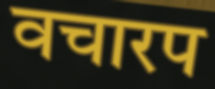
वचारप